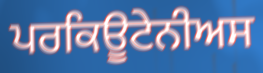
ਪਰਕਿਊਟੇਨੀਅਸ